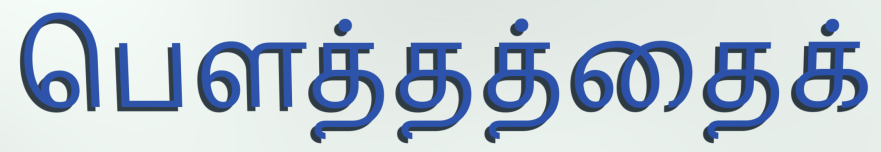
பௌத்தத்தைக்